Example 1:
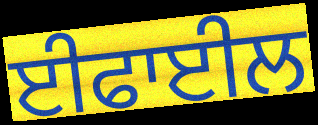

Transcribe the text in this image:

ਈਫਾਈਲ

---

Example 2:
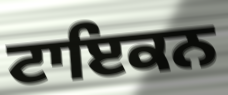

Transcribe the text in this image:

ਟਾਇਕਨ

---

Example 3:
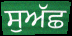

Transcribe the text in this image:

ਸੁਅੱਛ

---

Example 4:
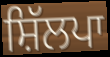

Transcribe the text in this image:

ਸ਼ਿੱਲਪਾ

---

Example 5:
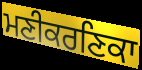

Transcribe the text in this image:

ਮਣੀਕਰਣਿਕਾ